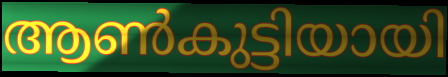
ആൺകുട്ടിയായി